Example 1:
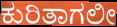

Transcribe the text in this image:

ಕುರಿತಾಗಲೀ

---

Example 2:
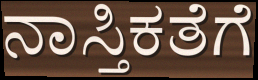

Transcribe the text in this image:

ನಾಸ್ತಿಕತೆಗೆ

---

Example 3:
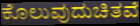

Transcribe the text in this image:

ಕೊಲುವುದುಚಿತವೆ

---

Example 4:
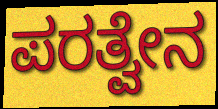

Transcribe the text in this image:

ಪರತ್ವೇನ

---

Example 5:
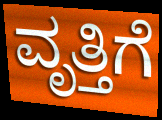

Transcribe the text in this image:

ವೃತ್ತಿಗೆ